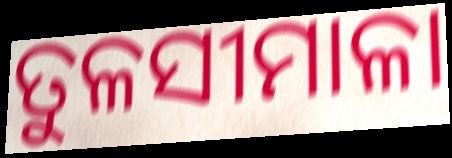
ତୁଳସୀମାଳା